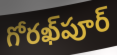
గోరఖ్‌పూర్